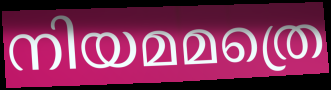
നിയമമത്രെ